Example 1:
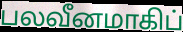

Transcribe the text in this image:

பலவீனமாகிப்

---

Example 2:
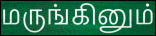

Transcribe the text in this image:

மருங்கினும்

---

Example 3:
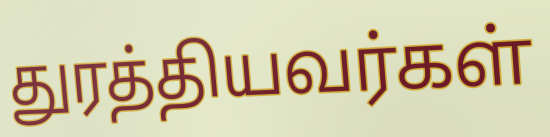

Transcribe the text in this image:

துரத்தியவர்கள்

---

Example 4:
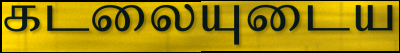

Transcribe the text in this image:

கடலையுடைய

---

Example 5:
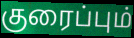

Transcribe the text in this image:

குரைப்பும்